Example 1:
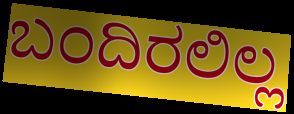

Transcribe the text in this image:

ಬಂದಿರಲಿಲ್ಲ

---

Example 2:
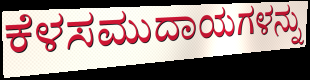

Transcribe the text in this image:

ಕೆಳಸಮುದಾಯಗಳನ್ನು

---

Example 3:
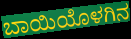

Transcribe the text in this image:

ಬಾಯಿಯೊಳಗಿನ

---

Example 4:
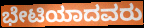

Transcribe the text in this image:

ಭೇಟಿಯಾದವರು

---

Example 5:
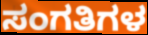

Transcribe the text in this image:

ಸಂಗತಿಗಳ